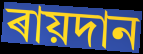
ৰায়দান